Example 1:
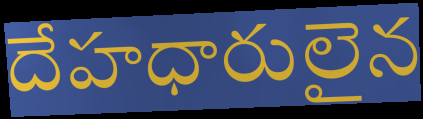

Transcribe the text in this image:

దేహధారులైన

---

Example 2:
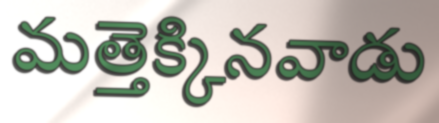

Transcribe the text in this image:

మత్తెక్కినవాడు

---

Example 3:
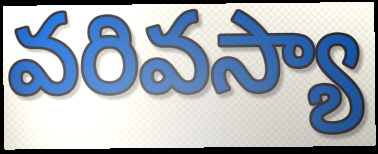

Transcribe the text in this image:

వరివస్యా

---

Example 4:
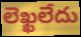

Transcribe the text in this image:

లెఖ్ఖలేదు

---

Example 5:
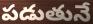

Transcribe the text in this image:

పడుతునే